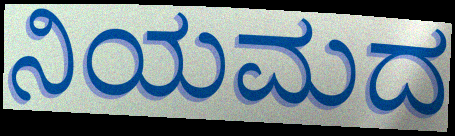
ನಿಯಮದ